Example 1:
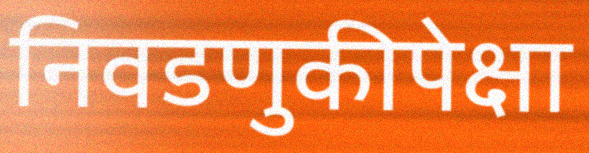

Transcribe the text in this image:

निवडणुकीपेक्षा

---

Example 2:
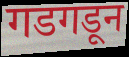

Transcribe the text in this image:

गडगडून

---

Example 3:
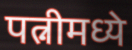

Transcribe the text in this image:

पत्नीमध्ये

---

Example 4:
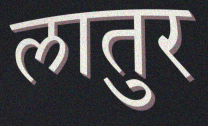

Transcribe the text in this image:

लातुर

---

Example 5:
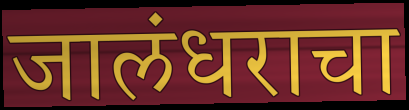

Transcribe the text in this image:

जालंधराचा